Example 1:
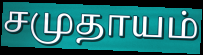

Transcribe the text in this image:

சமுதாயம்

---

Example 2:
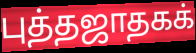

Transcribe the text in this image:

புத்தஜாதகக்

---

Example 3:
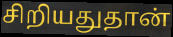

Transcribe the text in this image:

சிறியதுதான்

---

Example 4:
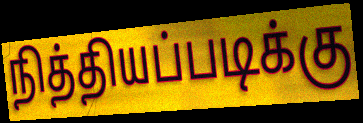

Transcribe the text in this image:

நித்தியப்படிக்கு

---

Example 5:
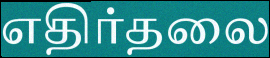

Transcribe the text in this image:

எதிர்தலை